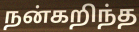
நன்கறிந்த